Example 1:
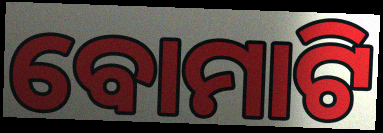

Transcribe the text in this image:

ବୋମାଟି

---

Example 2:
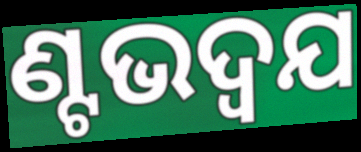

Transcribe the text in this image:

ଣ୍ଟଭଦ୍ଵଯ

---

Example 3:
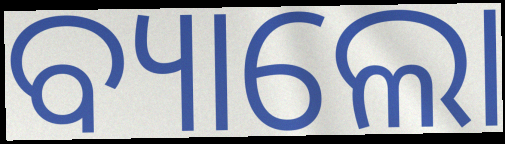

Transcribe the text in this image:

ବ୍ୟାଲୋ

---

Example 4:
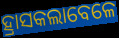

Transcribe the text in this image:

ହ୍ରାସକଲାବେଳେ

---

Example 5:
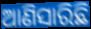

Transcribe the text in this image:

ଆଣିସାରିଛି